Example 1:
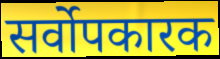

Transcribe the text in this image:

सर्वोपकारक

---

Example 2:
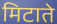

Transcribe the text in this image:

मिटाते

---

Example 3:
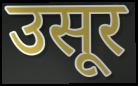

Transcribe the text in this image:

उसूर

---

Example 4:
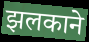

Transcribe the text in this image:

झलकाने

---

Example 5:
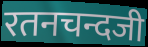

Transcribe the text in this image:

रतनचन्दजी